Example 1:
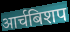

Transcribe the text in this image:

आर्चबिशप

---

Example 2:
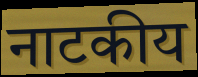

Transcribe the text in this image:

नाटकीय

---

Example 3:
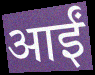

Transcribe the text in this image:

आईं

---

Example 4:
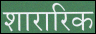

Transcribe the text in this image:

शारारिक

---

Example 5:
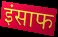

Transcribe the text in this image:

इंसाफ